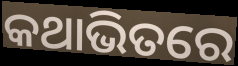
କଥାଭିତରେ